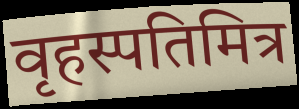
वृहस्पतिमित्र